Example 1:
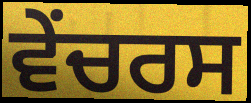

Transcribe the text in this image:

ਵੇਂਚਰਸ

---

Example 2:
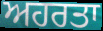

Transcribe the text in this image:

ਅਹਰਤਾ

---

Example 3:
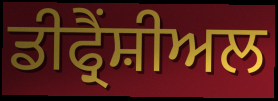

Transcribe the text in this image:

ਡੀਫ੍ਰੈਂਸ਼ੀਅਲ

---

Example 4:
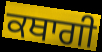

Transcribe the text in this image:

ਕਥਾਗੀ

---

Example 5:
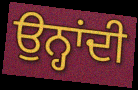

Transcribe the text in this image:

ਉਨ੍ਹਾਂਦੀ